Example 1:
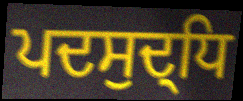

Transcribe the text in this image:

ਪਦਸੁਦ੍ਧਿ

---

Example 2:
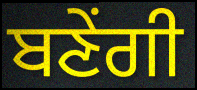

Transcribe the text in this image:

ਬਣੇਂਗੀ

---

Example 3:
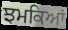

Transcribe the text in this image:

ਝਮਕਿਆਂ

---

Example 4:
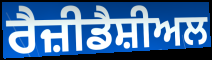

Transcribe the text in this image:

ਰੈਜ਼ੀਡੈਸ਼ੀਅਲ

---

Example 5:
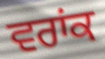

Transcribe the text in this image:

ਵਰਾਂਕ